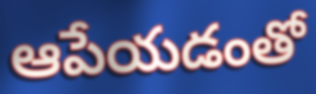
ఆపేయడంతో